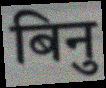
बिनु